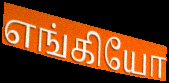
எங்கியோ